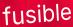
fusible